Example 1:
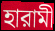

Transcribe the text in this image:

হারামী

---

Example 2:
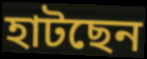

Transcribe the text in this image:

হাটছেন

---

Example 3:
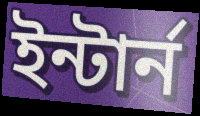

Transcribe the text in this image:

ইন্টার্ন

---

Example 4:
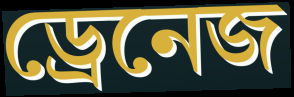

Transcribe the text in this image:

ড্রেনেজ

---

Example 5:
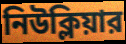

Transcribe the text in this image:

নিউক্লিয়ার